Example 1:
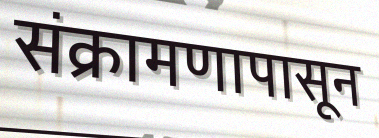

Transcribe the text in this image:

संक्रामणापासून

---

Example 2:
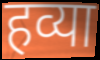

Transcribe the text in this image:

हव्या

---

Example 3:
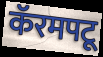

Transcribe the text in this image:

कॅरमपटू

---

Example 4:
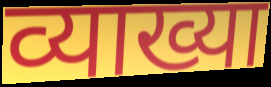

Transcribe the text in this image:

व्याख्या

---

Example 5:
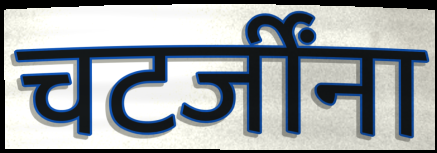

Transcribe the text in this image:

चटर्जींना